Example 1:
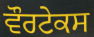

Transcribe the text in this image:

ਵੌਰਟੇਕਸ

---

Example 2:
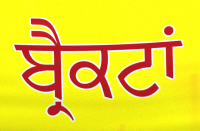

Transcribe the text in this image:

ਬ੍ਰੈਕਟਾਂ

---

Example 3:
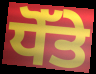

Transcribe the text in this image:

ਧੋੱਤੇ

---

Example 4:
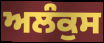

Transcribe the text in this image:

ਅਲੰਕੁਸ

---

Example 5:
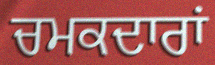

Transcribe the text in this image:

ਚਮਕਦਾਰਾਂ